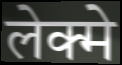
लेक्मे